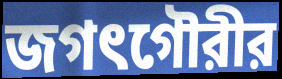
জগৎগৌরীর